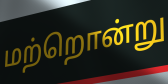
மற்றொன்று